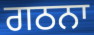
ਗਠਨਾ